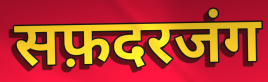
सफ़दरजंग